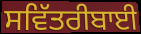
ਸਵਿੱਤਰੀਬਾਈ